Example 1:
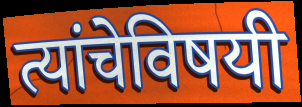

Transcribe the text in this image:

त्यांचेविषयी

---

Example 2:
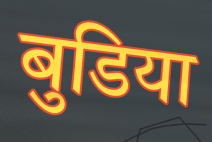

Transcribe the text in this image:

बुडिया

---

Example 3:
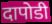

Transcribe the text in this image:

दापोडी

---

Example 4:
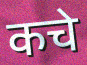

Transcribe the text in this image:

कचे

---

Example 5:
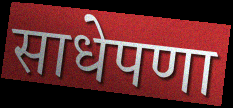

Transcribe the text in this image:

साधेपणा